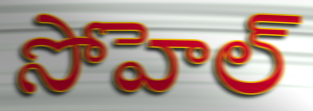
సోహెల్